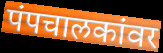
पंपचालकांवर